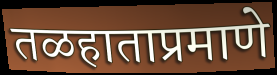
तळहाताप्रमाणे